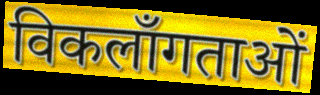
विकलाँगताओं